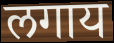
लगाय